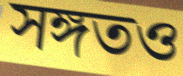
সঙ্গতও